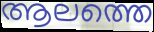
ആലത്തെ